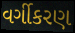
વર્ગીકરણ